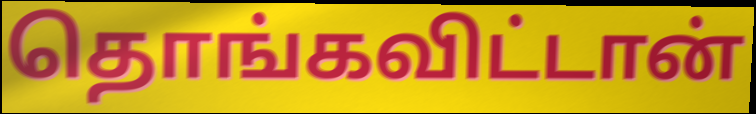
தொங்கவிட்டான்